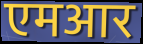
एमआर